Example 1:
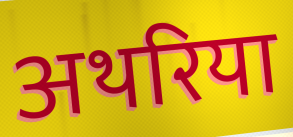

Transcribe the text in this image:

अथरिया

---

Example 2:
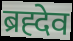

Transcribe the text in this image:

ब्रह्देव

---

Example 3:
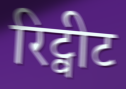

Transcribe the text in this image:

रिट्वीट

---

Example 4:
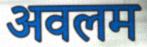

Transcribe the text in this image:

अवलम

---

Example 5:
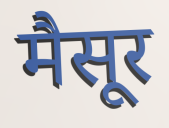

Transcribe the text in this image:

मैसूर